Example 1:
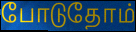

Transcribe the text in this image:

போடுதோம்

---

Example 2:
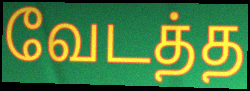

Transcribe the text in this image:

வேடத்த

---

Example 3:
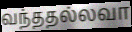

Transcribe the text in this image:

வந்ததல்லவா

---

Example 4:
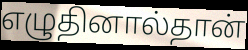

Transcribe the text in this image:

எழுதினால்தான்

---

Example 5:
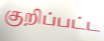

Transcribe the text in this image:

குறிப்பட்ட